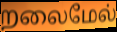
றலைமேல்